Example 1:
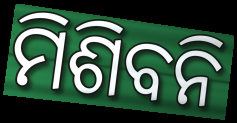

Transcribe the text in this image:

ମିଶିବନି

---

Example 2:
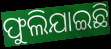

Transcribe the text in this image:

ଫୁଲିଯାଇଛି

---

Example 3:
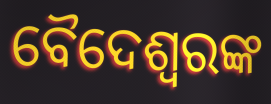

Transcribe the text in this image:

ବୈଦେଶ୍ୱରଙ୍କ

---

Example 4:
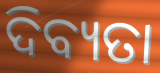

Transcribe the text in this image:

ଦିବ୍ୟତା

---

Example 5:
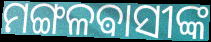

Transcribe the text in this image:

ମଙ୍ଗଳଵାସୀଙ୍କ